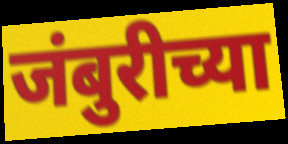
जंबुरीच्या